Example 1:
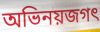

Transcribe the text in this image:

অভিনয়জগৎ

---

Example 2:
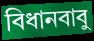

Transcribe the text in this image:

বিধানবাবু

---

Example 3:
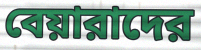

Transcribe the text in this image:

বেয়ারাদের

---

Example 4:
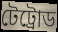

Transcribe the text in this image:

টেট্রোড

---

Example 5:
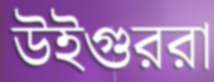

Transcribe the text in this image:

উইগুররা